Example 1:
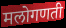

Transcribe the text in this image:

मलोगणती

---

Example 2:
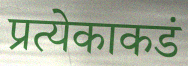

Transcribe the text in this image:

प्रत्येकाकडं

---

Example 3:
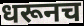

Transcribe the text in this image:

धरूनच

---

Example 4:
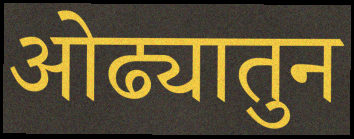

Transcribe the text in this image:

ओढ्यातुन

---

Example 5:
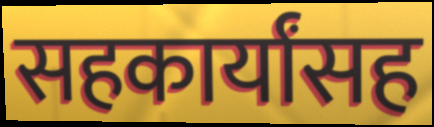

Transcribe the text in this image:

सहकार्यांसह